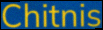
Chitnis